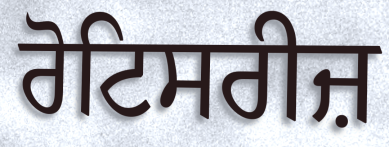
ਰੋਟਿਸਰੀਜ਼